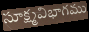
సూక్ష్మవిభాగము